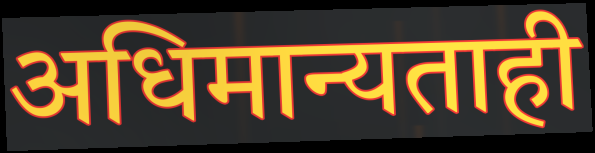
अधिमान्यताही